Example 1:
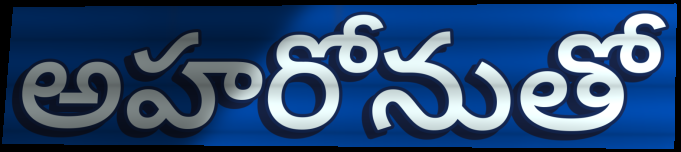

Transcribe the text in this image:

అహరోనుతో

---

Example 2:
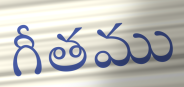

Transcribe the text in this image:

గీతము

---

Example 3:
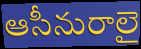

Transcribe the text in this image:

ఆసీనురాలై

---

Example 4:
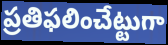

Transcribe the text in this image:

ప్రతిఫలించేట్టుగా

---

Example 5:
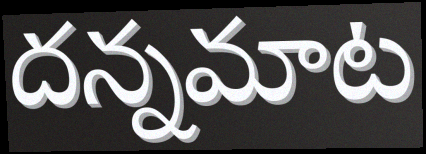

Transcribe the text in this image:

దన్నమాట